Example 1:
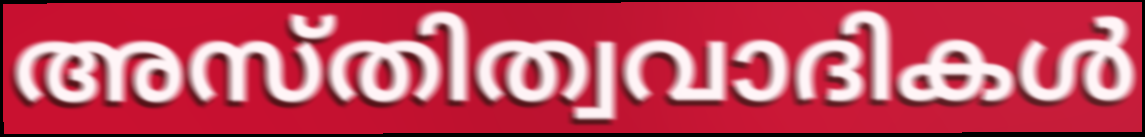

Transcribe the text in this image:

അസ്തിത്വവാദികൾ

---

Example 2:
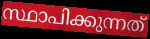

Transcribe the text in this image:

സ്ഥാപിക്കുന്നത്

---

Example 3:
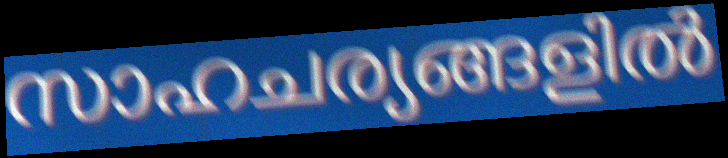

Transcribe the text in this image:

സാഹചര്യങ്ങളിൽ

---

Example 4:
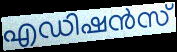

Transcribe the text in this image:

എഡിഷൻസ്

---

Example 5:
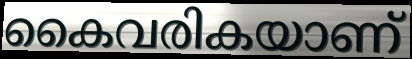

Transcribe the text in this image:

കൈവരികയാണ്